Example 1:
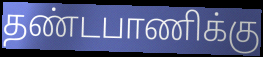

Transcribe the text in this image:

தண்டபாணிக்கு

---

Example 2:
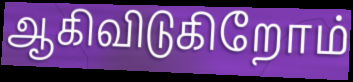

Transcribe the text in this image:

ஆகிவிடுகிறோம்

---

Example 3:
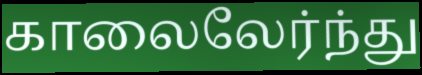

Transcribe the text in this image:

காலைலேர்ந்து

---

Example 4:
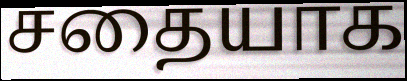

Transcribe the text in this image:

சதையாக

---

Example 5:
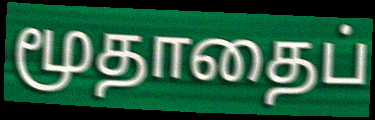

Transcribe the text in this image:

மூதாதைப்